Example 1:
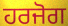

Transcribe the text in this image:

ਹਰਜੋਗ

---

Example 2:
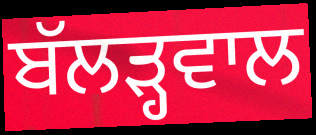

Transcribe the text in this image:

ਬੱਲੜ੍ਹਵਾਲ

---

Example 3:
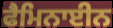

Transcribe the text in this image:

ਫੈਮਿਨਾਈਨ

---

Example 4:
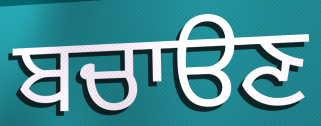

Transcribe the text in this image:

ਬਚਾੳਣ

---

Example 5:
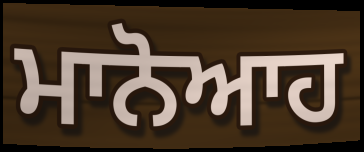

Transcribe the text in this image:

ਮਾਨੋਆਹ